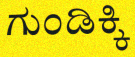
ಗುಂಡಿಕ್ಕಿ